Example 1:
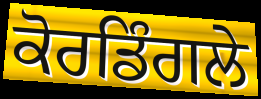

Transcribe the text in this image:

ਕੋਰਡਿੰਗਲੇ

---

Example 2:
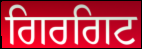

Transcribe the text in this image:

ਗਿਰਗਿਟ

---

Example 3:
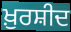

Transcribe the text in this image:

ਖ਼ੁਰਸ਼ੀਦ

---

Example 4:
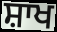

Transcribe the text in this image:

ਸ਼ਾਖ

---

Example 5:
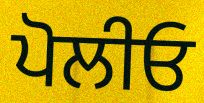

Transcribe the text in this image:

ਪੋਲੀਓ